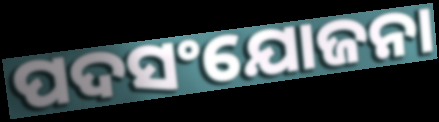
ପଦସଂଯୋଜନା